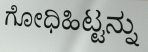
ಗೋಧಿಹಿಟ್ಟನ್ನು